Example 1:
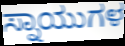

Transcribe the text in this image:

ಸ್ನಾಯುಗಳ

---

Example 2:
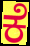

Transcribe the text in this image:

ಕೆ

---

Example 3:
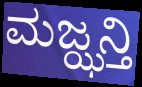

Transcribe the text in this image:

ಮಜ್ಝನ್ತಿ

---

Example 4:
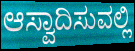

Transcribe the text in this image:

ಆಸ್ವಾದಿಸುವಲ್ಲಿ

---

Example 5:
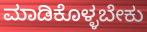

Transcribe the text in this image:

ಮಾಡಿಕೊಳ್ಳಬೇಕು